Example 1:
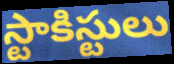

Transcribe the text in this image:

స్టాకిస్టులు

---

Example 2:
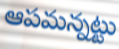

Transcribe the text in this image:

ఆపమన్నట్టు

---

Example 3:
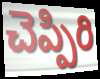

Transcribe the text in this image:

చెప్పిరి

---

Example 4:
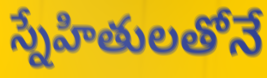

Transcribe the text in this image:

స్నేహితులతోనే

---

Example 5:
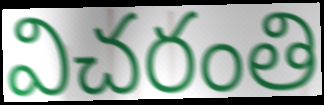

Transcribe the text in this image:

విచరంతి